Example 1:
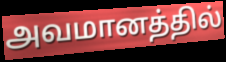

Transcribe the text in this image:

அவமானத்தில்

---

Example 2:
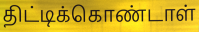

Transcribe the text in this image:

திட்டிக்கொண்டாள்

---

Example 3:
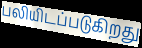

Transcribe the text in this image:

பலியிடப்படுகிறது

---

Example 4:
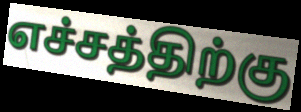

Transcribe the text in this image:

எச்சத்திற்கு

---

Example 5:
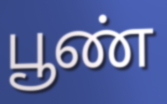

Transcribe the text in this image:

பூண்